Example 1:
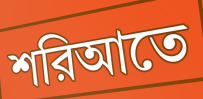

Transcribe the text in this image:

শরিআতে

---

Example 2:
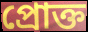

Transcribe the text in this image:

প্রোক্ত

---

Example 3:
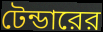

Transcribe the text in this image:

টেন্ডারের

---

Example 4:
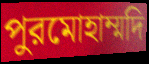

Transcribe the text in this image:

পুরমোহাম্মদি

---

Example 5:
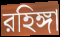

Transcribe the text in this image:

রহিঙ্গা